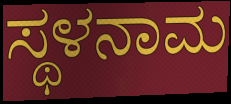
ಸ್ಥಳನಾಮ